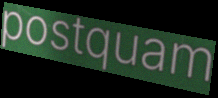
postquam